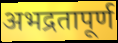
अभद्रतापूर्ण